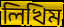
লিখিম